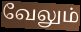
வேலும்